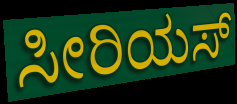
ಸೀರಿಯಸ್